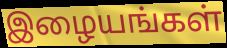
இழையங்கள்